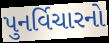
પુનર્વિચારનો